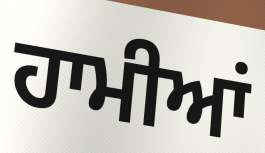
ਹਾਮੀਆਂ